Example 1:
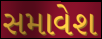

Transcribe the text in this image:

સમાવેશ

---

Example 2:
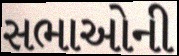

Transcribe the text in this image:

સભાઓની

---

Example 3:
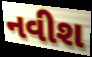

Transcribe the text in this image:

નવીશ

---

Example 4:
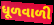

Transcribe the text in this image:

ધૂળવાળી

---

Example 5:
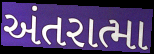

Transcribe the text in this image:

અંતરાત્મા